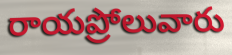
రాయప్రోలువారు